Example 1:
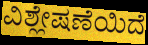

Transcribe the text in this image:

ವಿಶ್ಲೇಷಣೆಯಿದೆ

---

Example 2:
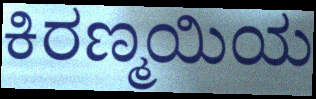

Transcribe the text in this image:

ಕಿರಣ್ಮಯಿಯ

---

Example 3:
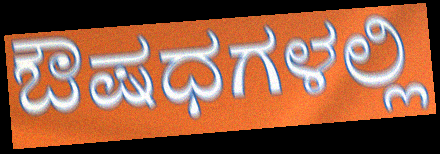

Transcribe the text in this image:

ಔಷಧಗಳಲ್ಲಿ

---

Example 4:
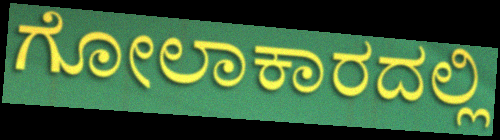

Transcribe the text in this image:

ಗೋಲಾಕಾರದಲ್ಲಿ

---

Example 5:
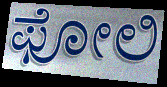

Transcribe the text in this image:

ಫೋಲಿ